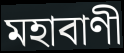
মহাবাণী